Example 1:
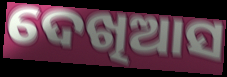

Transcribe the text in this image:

ଦେଖିଆସ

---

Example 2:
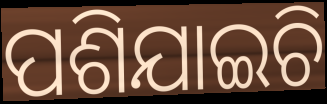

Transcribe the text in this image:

ପଶିଯାଇଚି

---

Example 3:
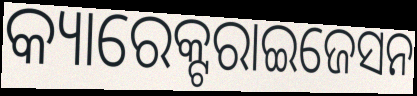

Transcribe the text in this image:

କ୍ୟାରେକ୍ଟରାଇଜେସନ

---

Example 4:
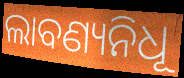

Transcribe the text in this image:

ଲାବଣ୍ୟନିଧୂ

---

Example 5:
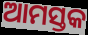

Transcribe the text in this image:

ଆମସ୍ତକ